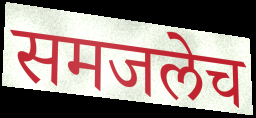
समजलेच